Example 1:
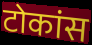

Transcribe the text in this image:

टोकांस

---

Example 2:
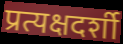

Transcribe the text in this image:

प्रत्यक्षदर्शी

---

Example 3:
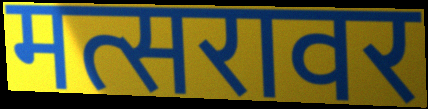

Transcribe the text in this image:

मत्सरावर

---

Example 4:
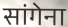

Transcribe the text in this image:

सांगेना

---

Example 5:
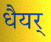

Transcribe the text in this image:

धैयर्